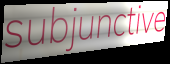
subjunctive